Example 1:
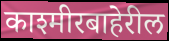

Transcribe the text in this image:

काश्मीरबाहेरील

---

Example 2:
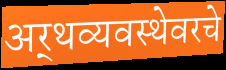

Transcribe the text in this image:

अर्थव्यवस्थेवरचे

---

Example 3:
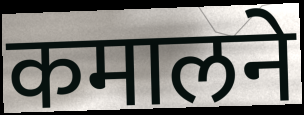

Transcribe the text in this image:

कमालने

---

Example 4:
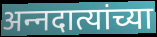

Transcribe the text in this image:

अन्नदात्यांच्या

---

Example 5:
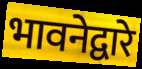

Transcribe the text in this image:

भावनेद्वारे